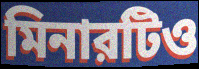
মিনারটিও